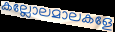
കല്ലോലമാലകളേ